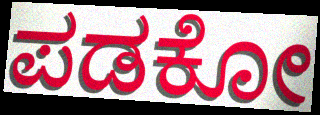
ಪಡಕೋ